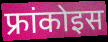
फ्रांकोइस